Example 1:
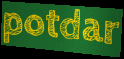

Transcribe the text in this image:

potdar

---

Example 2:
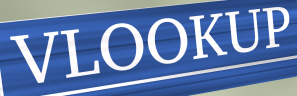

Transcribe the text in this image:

VLOOKUP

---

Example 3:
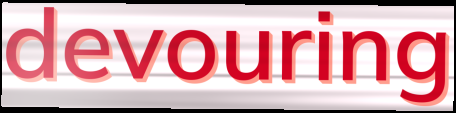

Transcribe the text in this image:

devouring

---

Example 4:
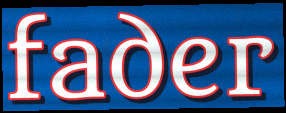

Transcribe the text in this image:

fader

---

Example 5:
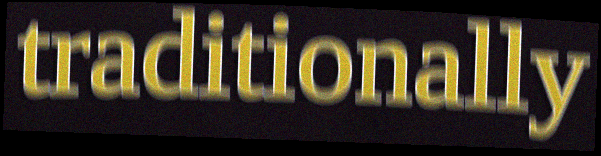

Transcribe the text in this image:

traditionally